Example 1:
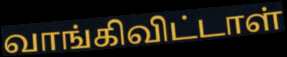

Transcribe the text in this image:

வாங்கிவிட்டாள்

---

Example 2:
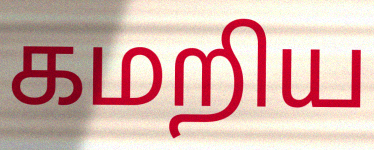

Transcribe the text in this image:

கமறிய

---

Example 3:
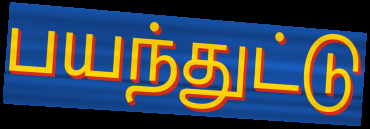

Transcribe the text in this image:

பயந்துட்டு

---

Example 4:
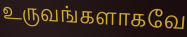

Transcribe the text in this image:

உருவங்களாகவே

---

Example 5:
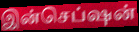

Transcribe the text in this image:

இன்செப்ஷன்